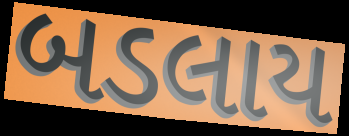
બડલાય